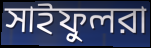
সাইফুলরা